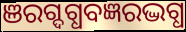
ଞରଗ୍ଦଗ୍ଧବଜ୍ଞରଦ୍ଭଗ୍ଧ